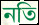
নতি